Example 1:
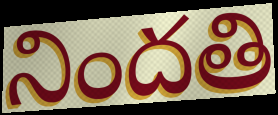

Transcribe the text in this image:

నిందతి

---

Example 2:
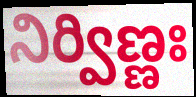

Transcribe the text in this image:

నిర్విణ్ణః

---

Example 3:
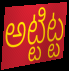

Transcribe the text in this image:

అట్టిట్ట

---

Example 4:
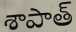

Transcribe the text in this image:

శాపాత్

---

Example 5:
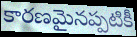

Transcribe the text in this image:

కారణమైనప్పటికీ